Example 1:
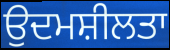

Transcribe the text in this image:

ਉਦਮਸ਼ੀਲਤਾ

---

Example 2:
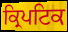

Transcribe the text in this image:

ਕ੍ਰਿਪਟਿਕ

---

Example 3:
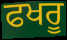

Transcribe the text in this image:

ਫਖਰੂ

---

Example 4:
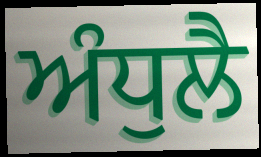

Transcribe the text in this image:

ਅੰਧੁਲੈ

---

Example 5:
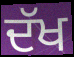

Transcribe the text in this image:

ਦੱਖ